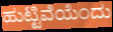
ಹುಟ್ಟಿವೆಯೆಂದು